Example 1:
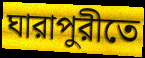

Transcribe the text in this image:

ঘারাপুরীতে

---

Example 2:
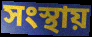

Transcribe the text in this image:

সংস্থায়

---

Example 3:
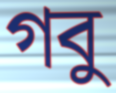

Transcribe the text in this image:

গবু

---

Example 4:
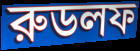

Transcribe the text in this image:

রুডলফ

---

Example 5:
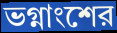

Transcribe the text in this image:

ভগ্নাংশের